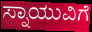
ಸ್ನಾಯುವಿಗೆ